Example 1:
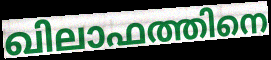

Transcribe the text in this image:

ഖിലാഫത്തിനെ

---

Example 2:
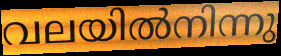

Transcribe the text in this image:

വലയിൽനിന്നു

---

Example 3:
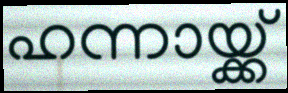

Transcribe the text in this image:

ഹന്നായ്ക്ക്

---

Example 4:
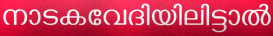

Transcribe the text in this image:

നാടകവേദിയിലിട്ടാൽ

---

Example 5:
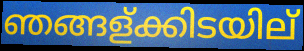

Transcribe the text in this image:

ഞങ്ങള്ക്കിടയില്